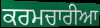
ਕਰਮਚਾਰੀਆ